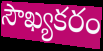
సౌఖ్యకరం